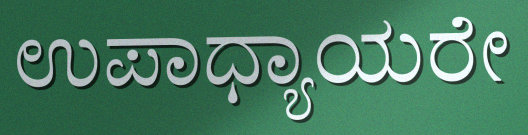
ಉಪಾಧ್ಯಾಯರೇ